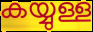
കയ്യുള്ള